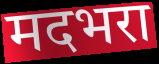
मदभरा